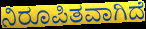
ನಿರೂಪಿತವಾಗಿದೆ